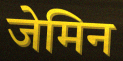
जेमिन